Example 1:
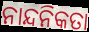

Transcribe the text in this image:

ନାନ୍ଦନିକତା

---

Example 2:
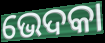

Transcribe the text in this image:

ଭେଦକା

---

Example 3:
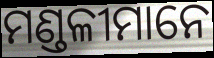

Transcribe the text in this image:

ମଣ୍ଡଳୀମାନେ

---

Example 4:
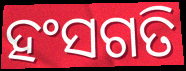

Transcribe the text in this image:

ହଂସଗତି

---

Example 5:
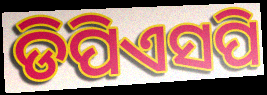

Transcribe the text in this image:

ଡିପିଏସପି